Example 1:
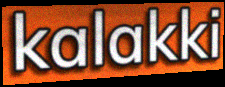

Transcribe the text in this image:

kalakki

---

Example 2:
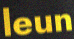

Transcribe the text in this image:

leun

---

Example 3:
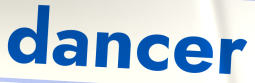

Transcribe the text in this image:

dancer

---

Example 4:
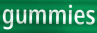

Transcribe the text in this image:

gummies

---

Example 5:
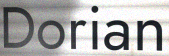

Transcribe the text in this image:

Dorian